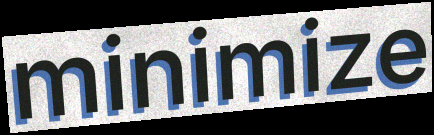
minimize